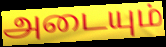
அடையும்